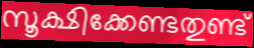
സൂക്ഷിക്കേണ്ടതുണ്ട്